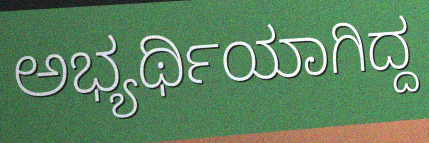
ಅಭ್ಯರ್ಥಿಯಾಗಿದ್ದ